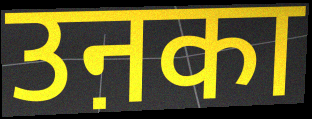
उऩका